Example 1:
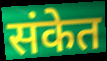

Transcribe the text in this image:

संकेत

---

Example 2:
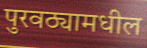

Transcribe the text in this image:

पुरवठ्यामधील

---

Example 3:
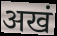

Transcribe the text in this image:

अखं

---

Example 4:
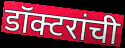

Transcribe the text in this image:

डॉक्टरांची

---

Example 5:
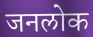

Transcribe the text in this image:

जनलोक